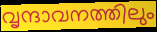
വൃന്ദാവനത്തിലും